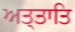
ਅਤ੍ਤਾਤਿ